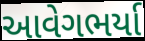
આવેગભર્યા